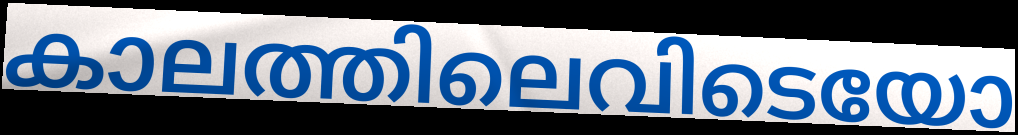
കാലത്തിലെവിടെയോ